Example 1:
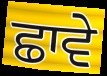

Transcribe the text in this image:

ਛਾਵੇ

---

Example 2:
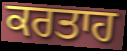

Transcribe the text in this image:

ਕਰਤਾਹ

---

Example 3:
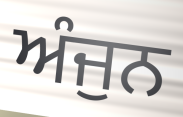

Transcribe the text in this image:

ਅੰਜੁਨ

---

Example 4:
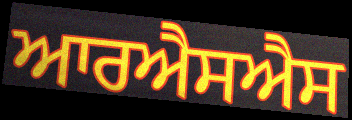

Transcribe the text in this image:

ਆਰਐਸਐਸ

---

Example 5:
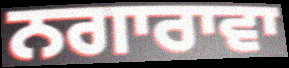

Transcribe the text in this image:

ਨਗਾਰਾਵਾ